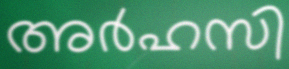
അർഹസി